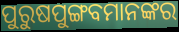
ପୁରୁଷପୁଙ୍ଗବମାନଙ୍କର